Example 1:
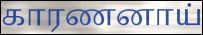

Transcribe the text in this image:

காரணனாய்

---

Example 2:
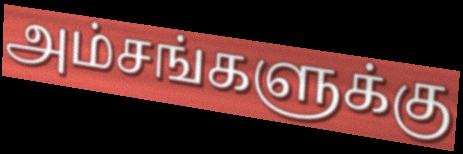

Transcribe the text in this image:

அம்சங்களுக்கு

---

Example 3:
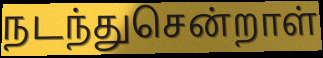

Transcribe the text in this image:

நடந்துசென்றாள்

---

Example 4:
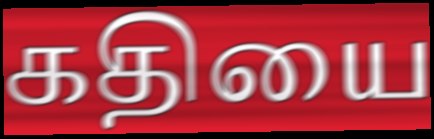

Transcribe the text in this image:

கதியை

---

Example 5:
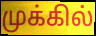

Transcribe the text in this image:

முக்கில்